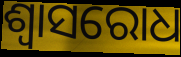
ଶ୍ୱାସରୋଧ